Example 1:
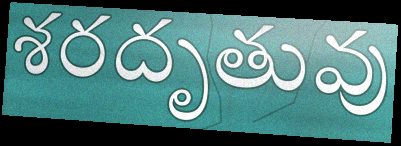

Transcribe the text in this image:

శరదృతువు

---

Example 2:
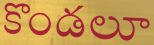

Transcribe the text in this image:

కొండలూ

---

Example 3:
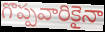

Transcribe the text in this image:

గొప్పవారికైనా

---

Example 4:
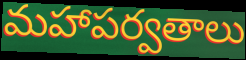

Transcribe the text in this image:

మహాపర్వతాలు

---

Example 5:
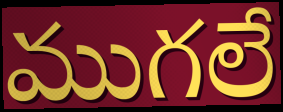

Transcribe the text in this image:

ముగలే